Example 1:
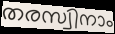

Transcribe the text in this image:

തരസ്വിനാം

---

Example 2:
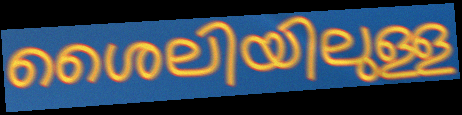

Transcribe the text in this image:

ശൈലിയിലുള്ള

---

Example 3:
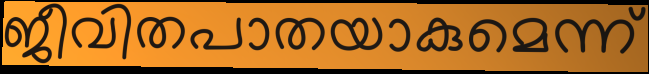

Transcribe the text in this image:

ജീവിതപാതയാകുമെന്ന്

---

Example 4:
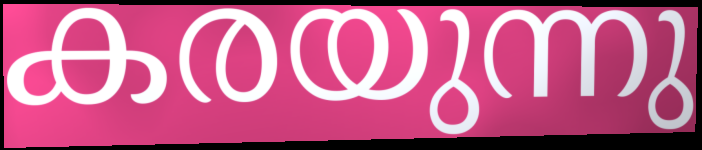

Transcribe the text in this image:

കരയുന്നു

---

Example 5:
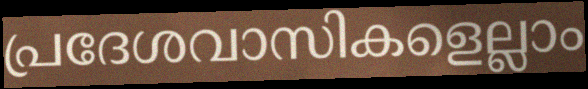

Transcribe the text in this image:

പ്രദേശവാസികളെല്ലാം